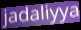
jadaliyya